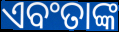
ଏବଂତାଙ୍କ